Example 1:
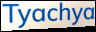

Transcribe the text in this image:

Tyachya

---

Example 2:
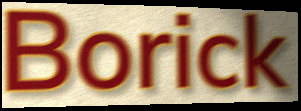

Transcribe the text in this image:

Borick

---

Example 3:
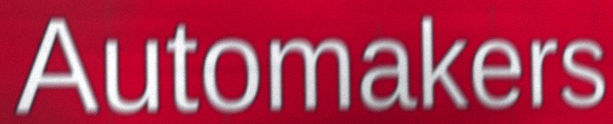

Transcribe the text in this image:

Automakers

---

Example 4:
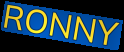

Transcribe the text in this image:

RONNY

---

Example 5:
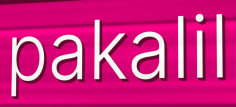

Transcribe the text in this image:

pakalil